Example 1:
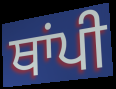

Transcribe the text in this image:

ਥਾਂਪੀ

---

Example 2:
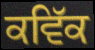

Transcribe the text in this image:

ਕਵਿੱਕ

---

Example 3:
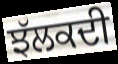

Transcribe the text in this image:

ਝੱਲਕਦੀ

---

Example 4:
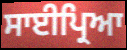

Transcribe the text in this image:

ਸਾਈਪ੍ਰਿਆ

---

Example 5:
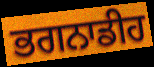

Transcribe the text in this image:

ਭਗਨਾਡੀਹ